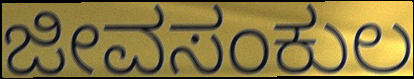
ಜೀವಸಂಕುಲ